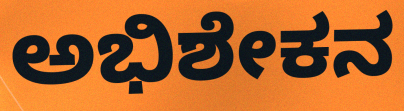
ಅಭಿಶೇಕನ